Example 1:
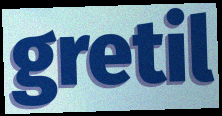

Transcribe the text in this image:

gretil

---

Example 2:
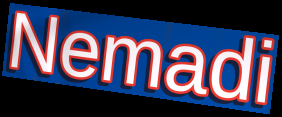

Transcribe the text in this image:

Nemadi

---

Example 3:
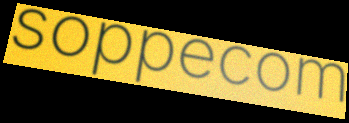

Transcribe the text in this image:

soppecom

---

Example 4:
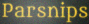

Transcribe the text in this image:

Parsnips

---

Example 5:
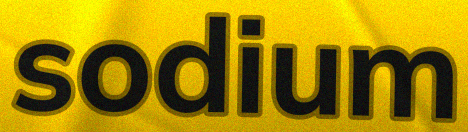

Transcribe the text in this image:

sodium